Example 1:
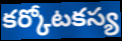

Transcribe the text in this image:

కర్కోటకస్య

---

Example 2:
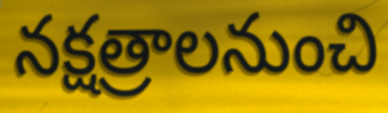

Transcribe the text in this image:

నక్షత్రాలనుంచి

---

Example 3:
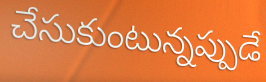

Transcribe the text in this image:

చేసుకుంటున్నప్పుడే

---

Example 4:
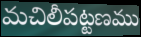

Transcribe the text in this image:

మచిలీపట్టణము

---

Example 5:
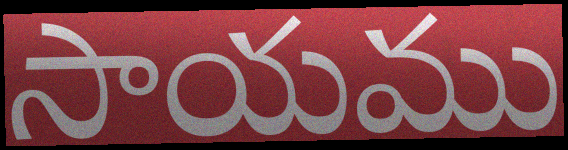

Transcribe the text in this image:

సాయము